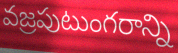
వజ్రపుటుంగరాన్ని